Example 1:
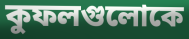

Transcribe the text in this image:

কুফলগুলোকে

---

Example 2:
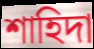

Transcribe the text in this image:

শাহিদা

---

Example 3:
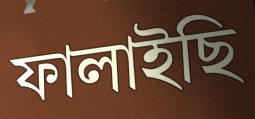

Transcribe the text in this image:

ফালাইছি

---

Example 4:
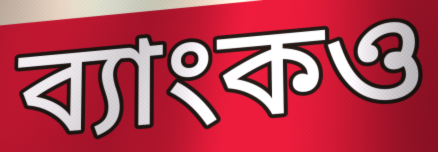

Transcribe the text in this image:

ব্যাংকও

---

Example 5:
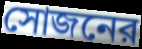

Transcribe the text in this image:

সোজনের